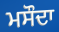
ਮਸੌਦਾ